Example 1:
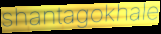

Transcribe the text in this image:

shantagokhale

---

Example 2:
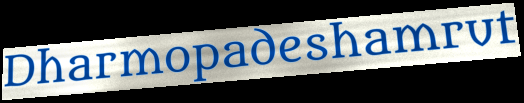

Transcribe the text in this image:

Dharmopadeshamrut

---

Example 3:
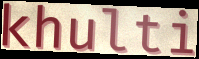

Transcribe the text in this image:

khulti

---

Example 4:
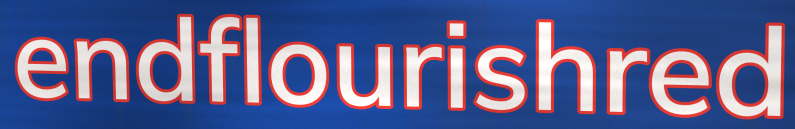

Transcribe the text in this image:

endflourishred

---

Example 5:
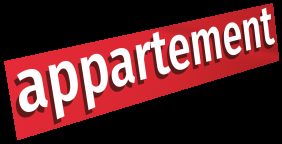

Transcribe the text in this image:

appartement